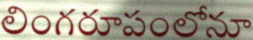
లింగరూపంలోనూ